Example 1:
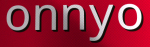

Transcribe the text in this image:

onnyo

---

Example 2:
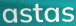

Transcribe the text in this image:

astas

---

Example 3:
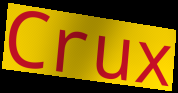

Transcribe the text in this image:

Crux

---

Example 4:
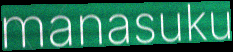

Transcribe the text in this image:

manasuku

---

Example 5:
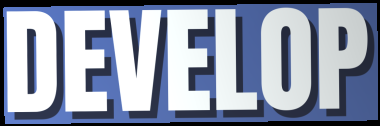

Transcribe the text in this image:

DEVELOP